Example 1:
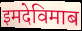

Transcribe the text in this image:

इमदेविमाब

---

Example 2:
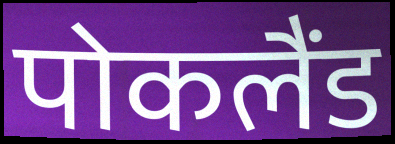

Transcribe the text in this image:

पोकलैंड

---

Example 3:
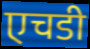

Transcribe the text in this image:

एचडी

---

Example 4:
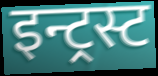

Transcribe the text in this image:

इन्ट्रस्ट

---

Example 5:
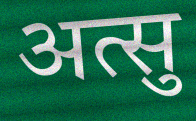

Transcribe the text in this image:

अत्सु